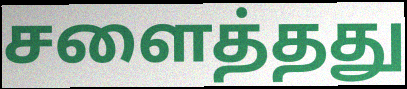
சளைத்தது